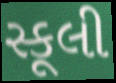
સ્કૂલી